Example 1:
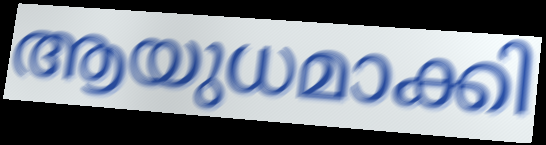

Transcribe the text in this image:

ആയുധമാക്കി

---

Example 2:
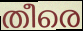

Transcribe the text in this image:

തീരെ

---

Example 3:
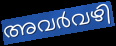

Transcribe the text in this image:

അവർവഴി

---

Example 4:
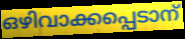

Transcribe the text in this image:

ഒഴിവാക്കപ്പെടാന്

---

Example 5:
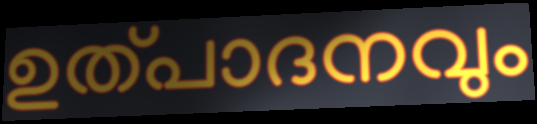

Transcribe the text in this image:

ഉത്പാദനവും